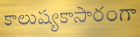
కాలుష్యకాసారంగా